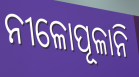
ନୀଳୋପୂଳାନି